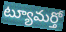
ట్యూమర్తో